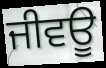
ਜੀਵਊ